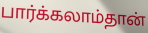
பார்க்கலாம்தான்